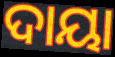
ଦାୟା